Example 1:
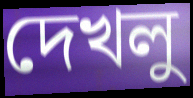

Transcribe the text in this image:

দেখলু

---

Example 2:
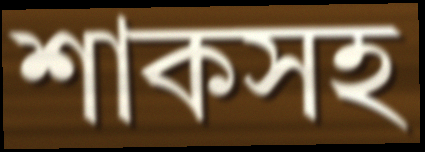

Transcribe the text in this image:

শাকসহ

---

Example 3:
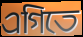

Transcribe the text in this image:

এগিতে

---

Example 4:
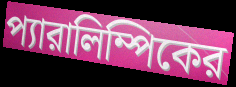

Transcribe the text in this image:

প্যারালিম্পিকের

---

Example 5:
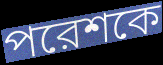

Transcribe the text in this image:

পরেশকে